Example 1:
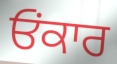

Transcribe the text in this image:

ਓਂਕਾਰ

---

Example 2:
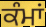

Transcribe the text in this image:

ਕੰਮਾਂ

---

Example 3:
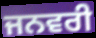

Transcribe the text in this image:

ਜਨਵਰੀ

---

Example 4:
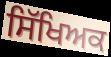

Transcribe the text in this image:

ਸਿੱਖਿਅਕ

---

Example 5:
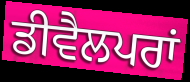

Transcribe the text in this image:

ਡੀਵੈਲਪਰਾਂ